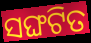
ସଙ୍ଘଟିତ